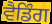
ਵੈਡਿੰਗ